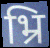
भ्रि